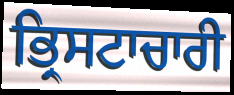
ਭ੍ਰਿਸਟਾਚਾਰੀ